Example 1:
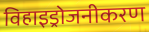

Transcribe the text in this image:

विहाइड्रोजनीकरण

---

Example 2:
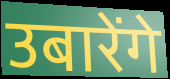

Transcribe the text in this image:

उबारेंगे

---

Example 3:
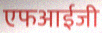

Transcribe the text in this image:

एफआईजी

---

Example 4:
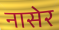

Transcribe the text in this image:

नासेर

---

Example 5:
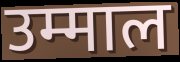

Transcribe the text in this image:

उम्माल